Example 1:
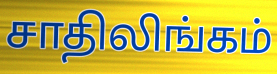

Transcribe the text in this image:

சாதிலிங்கம்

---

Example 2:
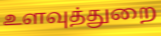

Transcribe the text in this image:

உளவுத்துறை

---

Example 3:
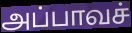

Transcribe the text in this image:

அப்பாவச்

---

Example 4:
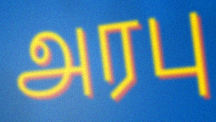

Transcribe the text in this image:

அரபு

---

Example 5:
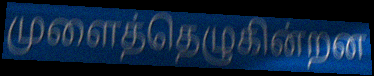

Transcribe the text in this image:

முளைத்தெழுகின்றன